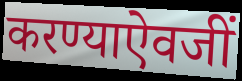
करण्याऐवजीं